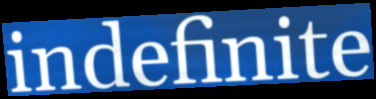
indefinite